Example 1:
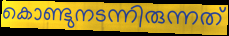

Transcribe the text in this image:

കൊണ്ടുനടന്നിരുന്നത്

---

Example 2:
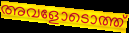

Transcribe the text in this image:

അവളോടൊത്ത്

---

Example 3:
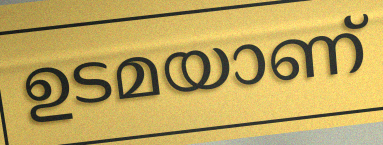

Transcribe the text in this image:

ഉടമയാണ്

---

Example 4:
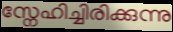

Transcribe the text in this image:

സ്നേഹിച്ചിരിക്കുന്നു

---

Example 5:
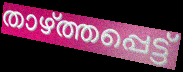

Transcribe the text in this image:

താഴ്ത്തപ്പെട്ട്